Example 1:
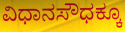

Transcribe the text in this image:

ವಿಧಾನಸೌಧಕ್ಕೂ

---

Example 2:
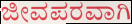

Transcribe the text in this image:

ಜೀವಪರವಾಗಿ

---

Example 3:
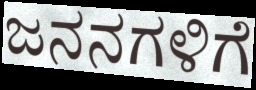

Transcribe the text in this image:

ಜನನಗಳಿಗೆ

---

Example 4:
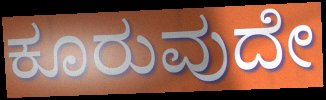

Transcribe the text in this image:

ಕೂರುವುದೇ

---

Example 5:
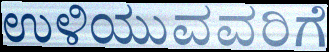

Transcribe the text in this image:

ಉಳಿಯುವವರಿಗೆ